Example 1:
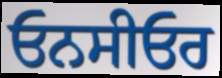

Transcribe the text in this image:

ਓਨਸੀਓਰ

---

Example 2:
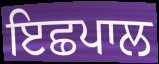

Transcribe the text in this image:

ਇਛਪਾਲ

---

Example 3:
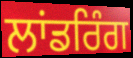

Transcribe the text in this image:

ਲਾਂਡਰਿੰਗ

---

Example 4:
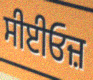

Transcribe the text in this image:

ਸੀਈਓਜ਼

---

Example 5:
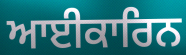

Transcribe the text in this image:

ਆਈਕਾਰਿਨ